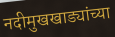
नदीमुखखाड्यांच्या